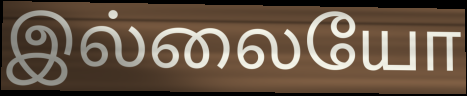
இல்லையோ